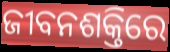
ଜୀବନଶକ୍ତିରେ